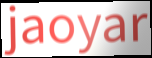
jaoyar